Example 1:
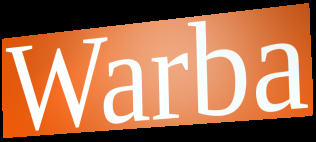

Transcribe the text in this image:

Warba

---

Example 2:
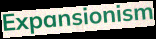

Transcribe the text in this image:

Expansionism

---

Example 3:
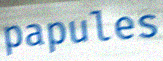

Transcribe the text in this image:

papules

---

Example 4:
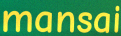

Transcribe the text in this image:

mansai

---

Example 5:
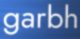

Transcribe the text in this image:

garbh